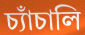
চ্যাঁচালি